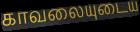
காவலையுடைய